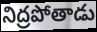
నిద్రపోతాడు